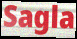
Sagla